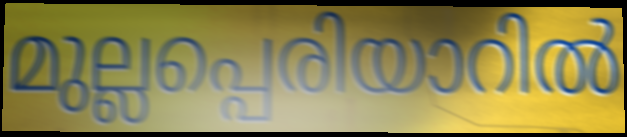
മുല്ലപ്പെരിയാറിൽ